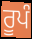
ਰੂਪੰ